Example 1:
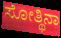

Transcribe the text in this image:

ಸೋತ್ಥಿನಾ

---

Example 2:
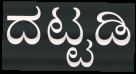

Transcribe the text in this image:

ದಟ್ಟಡಿ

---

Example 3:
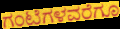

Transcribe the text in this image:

ಗಂಟೆಗಳವರೆಗೂ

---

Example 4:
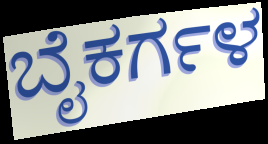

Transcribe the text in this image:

ಬೈಕರ್ಗಳ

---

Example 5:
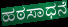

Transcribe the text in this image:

ಹಠಸಾಧನೆ